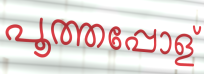
പൂത്തപ്പോള്